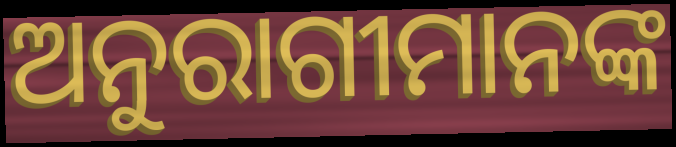
ଅନୁରାଗୀମାନଙ୍କ